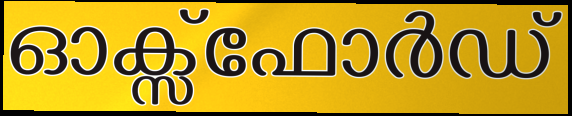
ഓക്സ്ഫോർഡ്